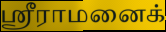
ஸ்ரீராமனைக்